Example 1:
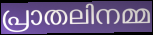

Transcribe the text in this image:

പ്രാതലിനമ്മ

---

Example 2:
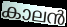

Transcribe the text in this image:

കാലൻ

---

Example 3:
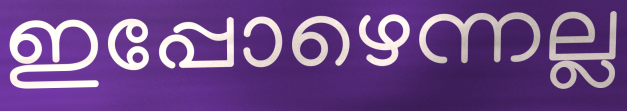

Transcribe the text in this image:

ഇപ്പോഴെന്നല്ല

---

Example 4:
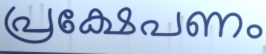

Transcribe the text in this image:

പ്രക്ഷേപണം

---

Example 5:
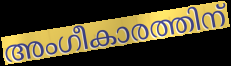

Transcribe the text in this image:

അംഗീകാരത്തിന്